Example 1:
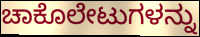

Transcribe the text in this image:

ಚಾಕೊಲೇಟುಗಳನ್ನು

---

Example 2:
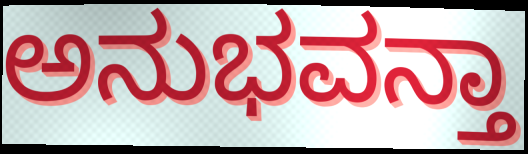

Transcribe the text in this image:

ಅನುಭವನ್ತಾ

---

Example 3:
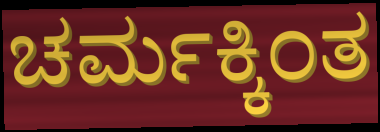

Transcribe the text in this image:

ಚರ್ಮಕ್ಕಿಂತ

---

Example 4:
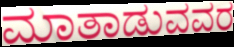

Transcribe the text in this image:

ಮಾತಾಡುವವರ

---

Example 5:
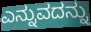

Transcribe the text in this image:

ಎನ್ನುವದನ್ನು